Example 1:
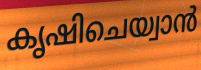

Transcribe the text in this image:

കൃഷിചെയ്വാൻ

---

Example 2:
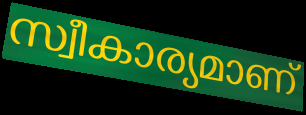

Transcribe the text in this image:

സ്വീകാര്യമാണ്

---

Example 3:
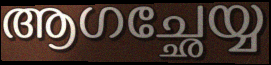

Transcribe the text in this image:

ആഗച്ഛേയ്യ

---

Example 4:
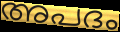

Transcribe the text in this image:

അപദം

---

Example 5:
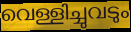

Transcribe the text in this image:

വെള്ളിച്ചുവടും